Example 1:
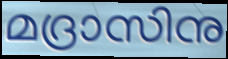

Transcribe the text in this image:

മദ്രാസിനു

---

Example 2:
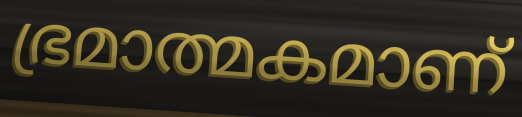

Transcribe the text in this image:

ഭ്രമാത്മകമാണ്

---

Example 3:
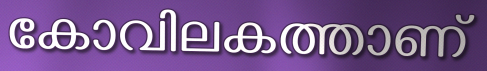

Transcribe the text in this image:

കോവിലകത്താണ്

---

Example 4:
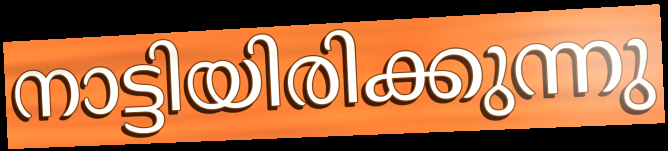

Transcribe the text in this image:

നാട്ടിയിരിക്കുന്നു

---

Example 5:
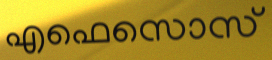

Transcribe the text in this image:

എഫെസൊസ്